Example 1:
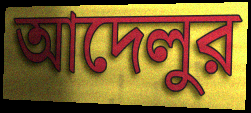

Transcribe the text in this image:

আদেলুর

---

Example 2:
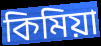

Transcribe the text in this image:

কিমিয়া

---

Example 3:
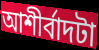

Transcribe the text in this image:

আশীর্বাদটা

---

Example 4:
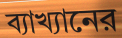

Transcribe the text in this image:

ব্যাখ্যানের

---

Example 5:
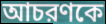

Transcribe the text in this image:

আচরণকে